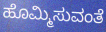
ಹೊಮ್ಮಿಸುವಂತೆ